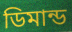
ডিমান্ড